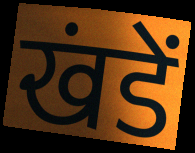
खंडें